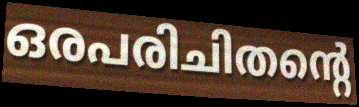
ഒരപരിചിതന്റെ